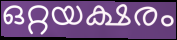
ഒറ്റയക്ഷരം